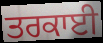
ਤਰਕਾਈ